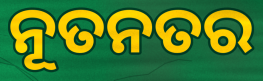
ନୂତନତର